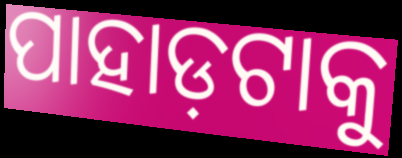
ପାହାଡ଼ଟାକୁ